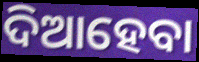
ଦିଆହେବା